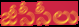
జీసీసీలు